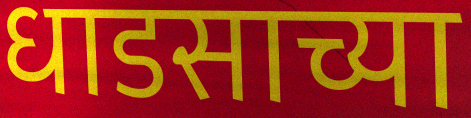
धाडसाच्या